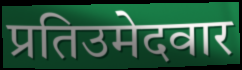
प्रतिउमेदवार